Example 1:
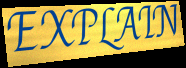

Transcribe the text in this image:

EXPLAIN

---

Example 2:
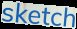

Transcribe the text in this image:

sketch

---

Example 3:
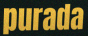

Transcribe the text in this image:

purada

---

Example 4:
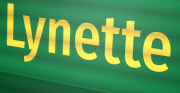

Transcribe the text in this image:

Lynette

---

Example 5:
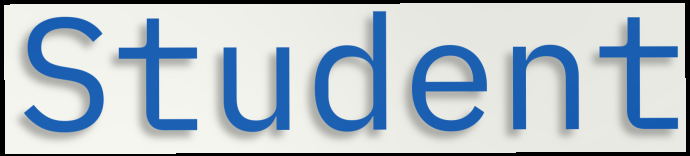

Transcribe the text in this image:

Student